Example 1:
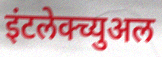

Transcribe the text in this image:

इंटलेक्च्युअल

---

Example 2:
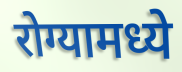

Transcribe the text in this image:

रोग्यामध्ये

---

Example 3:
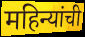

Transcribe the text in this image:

महिन्यांची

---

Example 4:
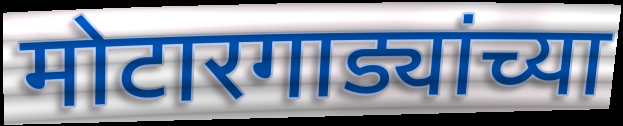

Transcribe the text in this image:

मोटारगाड्यांच्या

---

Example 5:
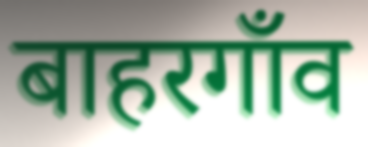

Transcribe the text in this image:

बाहरगाँव